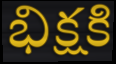
భిక్షకి